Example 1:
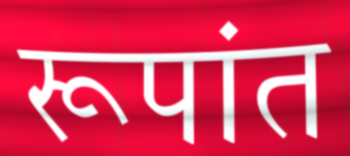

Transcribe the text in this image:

रूपांत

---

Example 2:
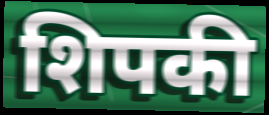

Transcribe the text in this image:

शिपकी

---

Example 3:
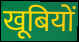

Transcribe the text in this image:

खूबियों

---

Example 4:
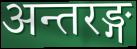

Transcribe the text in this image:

अन्तरङ्ग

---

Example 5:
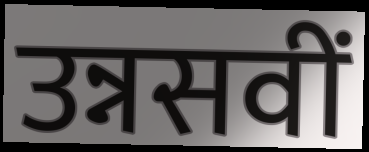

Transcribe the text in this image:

उन्नसवीं